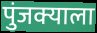
पुंजक्याला